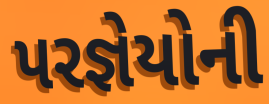
પરજ્ઞેયોની